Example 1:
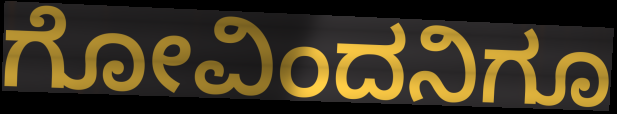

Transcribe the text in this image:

ಗೋವಿಂದನಿಗೂ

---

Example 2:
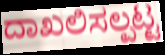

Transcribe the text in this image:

ದಾಖಲಿಸಲ್ಪಟ್ಟ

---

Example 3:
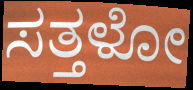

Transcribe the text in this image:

ಸತ್ತಳೋ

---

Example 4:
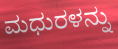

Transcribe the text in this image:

ಮಧುರಳನ್ನು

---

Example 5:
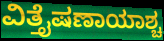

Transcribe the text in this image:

ವಿತ್ತೈಷಣಾಯಾಶ್ಚ